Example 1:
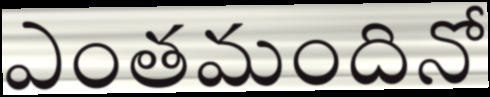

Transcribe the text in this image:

ఎంతమందినో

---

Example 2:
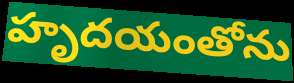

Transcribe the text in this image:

హృదయంతోను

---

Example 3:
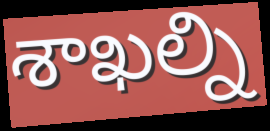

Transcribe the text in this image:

శాఖల్ని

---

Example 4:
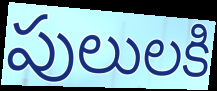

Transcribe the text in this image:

పులులకి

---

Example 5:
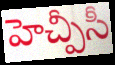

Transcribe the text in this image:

హెచ్పీసీ